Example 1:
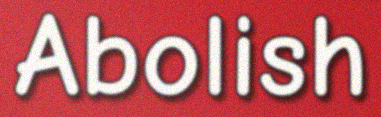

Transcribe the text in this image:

Abolish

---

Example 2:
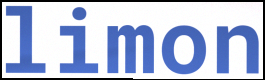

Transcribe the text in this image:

limon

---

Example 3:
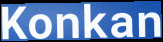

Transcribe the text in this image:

Konkan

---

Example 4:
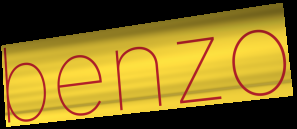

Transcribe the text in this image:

benzo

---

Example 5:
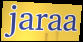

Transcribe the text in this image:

jaraa